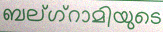
ബല്ഗ്റാമിയുടെ